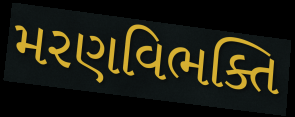
મરણવિભક્તિ